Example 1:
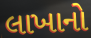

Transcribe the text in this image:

લાખાનો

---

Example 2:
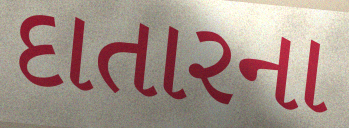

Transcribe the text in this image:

દાતારના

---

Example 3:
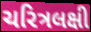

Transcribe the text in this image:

ચરિત્રલક્ષી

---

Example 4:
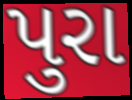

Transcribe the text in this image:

પુરા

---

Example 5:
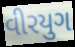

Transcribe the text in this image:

વીરયુગ